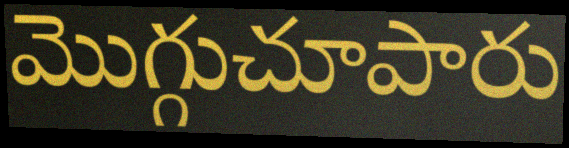
మొగ్గుచూపారు